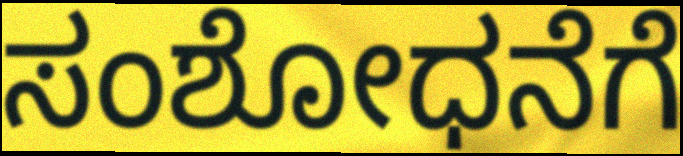
ಸಂಶೋಧನೆಗೆ